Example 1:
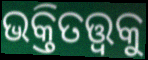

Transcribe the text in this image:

ଭକ୍ତିତତ୍ତ୍ୱକୁ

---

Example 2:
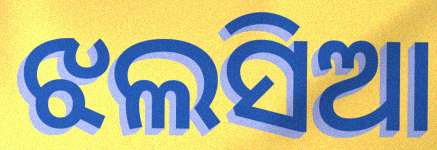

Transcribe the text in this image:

ଝଲସିଆ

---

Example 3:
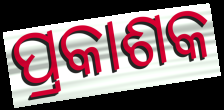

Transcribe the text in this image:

ପ୍ରକାଶକ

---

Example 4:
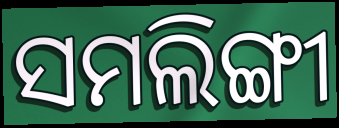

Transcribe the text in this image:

ସମଲିଙ୍ଗୀ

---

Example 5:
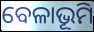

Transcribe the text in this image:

ବେଳାଭୂମି